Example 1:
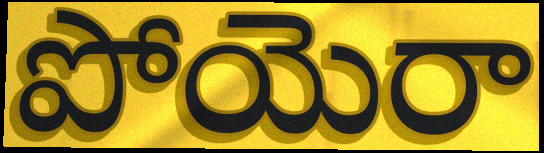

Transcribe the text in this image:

పోయెరా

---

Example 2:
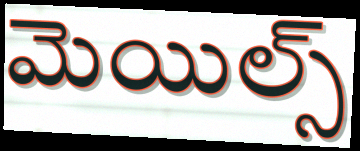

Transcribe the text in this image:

మెయిల్స్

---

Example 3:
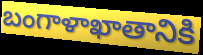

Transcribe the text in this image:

బంగాళాఖాతానికి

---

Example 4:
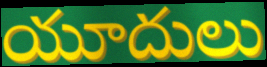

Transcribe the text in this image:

యూదులు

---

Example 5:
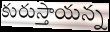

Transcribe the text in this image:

కురుస్తాయన్న